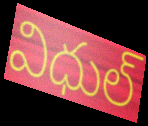
విధుల్